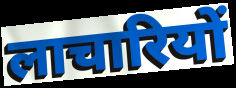
लाचारियों